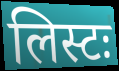
लिस्टः